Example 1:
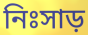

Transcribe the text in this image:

নিঃসাড়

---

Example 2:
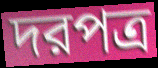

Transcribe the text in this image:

দরপত্র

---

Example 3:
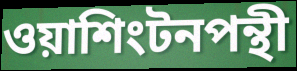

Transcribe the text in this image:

ওয়াশিংটনপন্থী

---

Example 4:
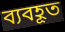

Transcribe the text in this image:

ব্যবহূত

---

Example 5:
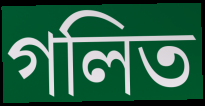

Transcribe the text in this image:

গলিত